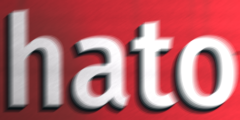
hato